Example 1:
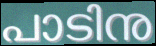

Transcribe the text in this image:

പാടിനു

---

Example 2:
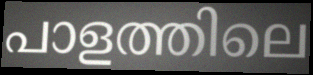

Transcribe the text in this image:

പാളത്തിലെ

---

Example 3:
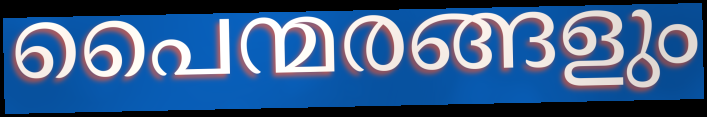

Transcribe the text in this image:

പൈന്മരങ്ങളും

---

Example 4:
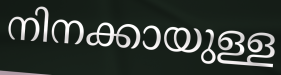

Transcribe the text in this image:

നിനക്കായുള്ള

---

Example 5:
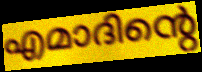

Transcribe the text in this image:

എമാദിന്റെ